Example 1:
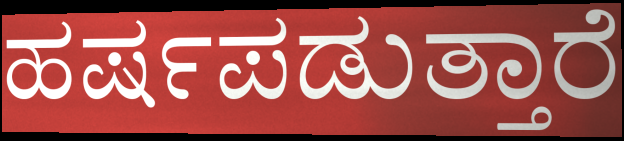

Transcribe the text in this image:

ಹರ್ಷಪಡುತ್ತಾರೆ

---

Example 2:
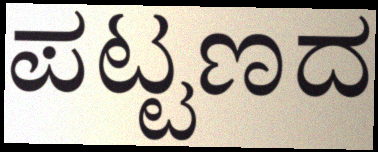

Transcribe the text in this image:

ಪಟ್ಟಣದ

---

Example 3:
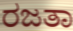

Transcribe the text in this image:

ರಜತಾ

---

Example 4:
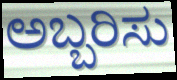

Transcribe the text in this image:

ಅಬ್ಬರಿಸು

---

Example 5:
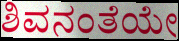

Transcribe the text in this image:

ಶಿವನಂತೆಯೇ